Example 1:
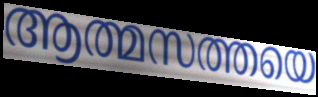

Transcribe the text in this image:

ആത്മസത്തയെ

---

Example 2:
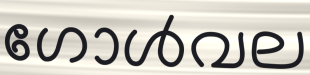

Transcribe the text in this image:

ഗോൾവല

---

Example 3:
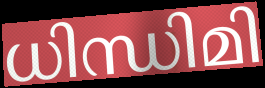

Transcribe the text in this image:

ധിന്ധിമി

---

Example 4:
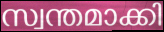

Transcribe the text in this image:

സ്വന്തമാക്കി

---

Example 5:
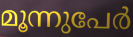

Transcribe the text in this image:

മൂന്നുപേർ